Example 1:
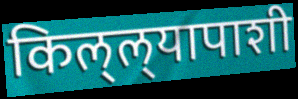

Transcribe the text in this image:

किल्ल्यापाशी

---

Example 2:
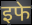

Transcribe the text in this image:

इफे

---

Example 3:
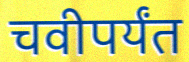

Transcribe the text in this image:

चवीपर्यंत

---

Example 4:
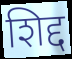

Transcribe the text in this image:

शिद्द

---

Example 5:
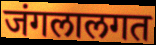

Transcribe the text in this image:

जंगलालगत